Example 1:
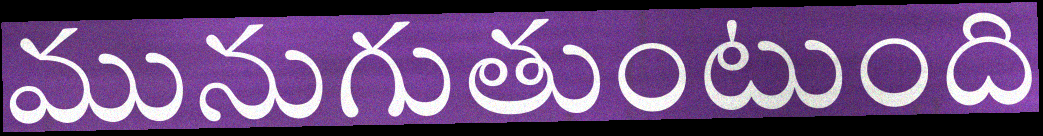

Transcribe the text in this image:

మునుగుతుంటుంది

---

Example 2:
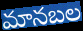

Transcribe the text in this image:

మానబల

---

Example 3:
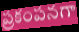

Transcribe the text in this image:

ప్రకంపనగా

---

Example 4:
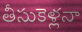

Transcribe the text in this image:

తీసుకెళ్లనా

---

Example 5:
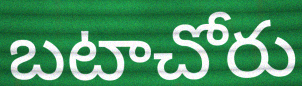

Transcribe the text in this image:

బటాచోరు